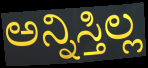
ಅನ್ನಿಸ್ತಿಲ್ಲ